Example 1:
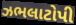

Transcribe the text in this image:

ઝભલાટોપી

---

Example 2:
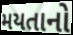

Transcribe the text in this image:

મયતાનો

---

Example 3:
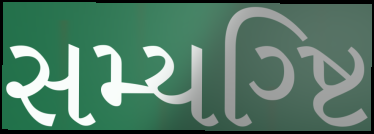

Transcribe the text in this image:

સમ્યગ્ષ્ટિ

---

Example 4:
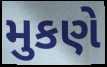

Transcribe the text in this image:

મુકણે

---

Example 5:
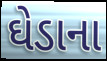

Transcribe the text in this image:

ઘેડાના